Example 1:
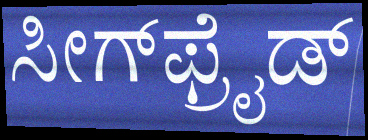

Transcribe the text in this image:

ಸೀಗ್‌ಫ್ರೈಡ್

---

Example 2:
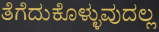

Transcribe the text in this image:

ತೆಗೆದುಕೊಳ್ಳುವುದಲ್ಲ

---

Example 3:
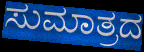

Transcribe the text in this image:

ಸುಮಾತ್ರದ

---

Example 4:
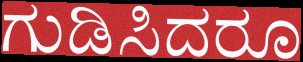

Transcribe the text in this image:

ಗುಡಿಸಿದರೂ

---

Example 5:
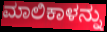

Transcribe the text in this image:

ಮಾಲಿಕಾಳನ್ನು